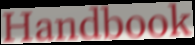
Handbook